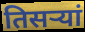
तिसऱ्यां